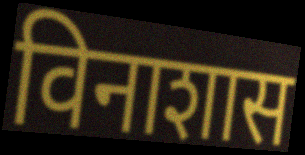
विनाशास